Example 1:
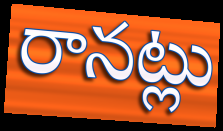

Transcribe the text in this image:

రానట్లు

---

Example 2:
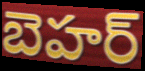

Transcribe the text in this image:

బెహర్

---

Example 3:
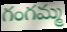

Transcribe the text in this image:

గంగమ్మ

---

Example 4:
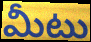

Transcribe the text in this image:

మీటు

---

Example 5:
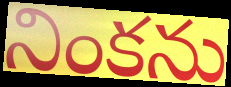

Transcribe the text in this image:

నింకను